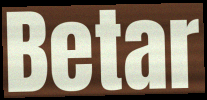
Betar